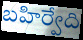
బహిర్వేది